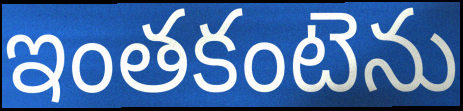
ఇంతకంటెను